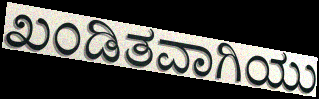
ಖಂಡಿತವಾಗಿಯು